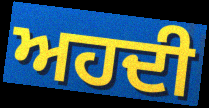
ਅਹਦੀ